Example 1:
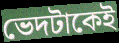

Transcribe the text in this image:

ভেদটাকেই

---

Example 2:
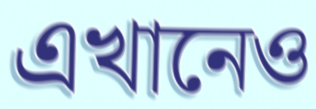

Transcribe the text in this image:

এখানেও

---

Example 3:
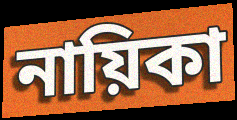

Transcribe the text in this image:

নায়িকা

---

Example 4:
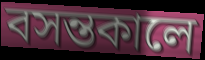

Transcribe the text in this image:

বসন্তকালে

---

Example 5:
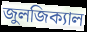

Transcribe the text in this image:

জুলজিক্যাল